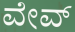
ವೇವ್